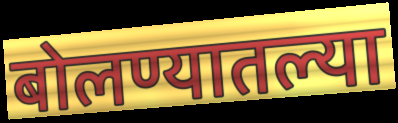
बोलण्यातल्या